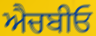
ਐਚਬੀਓ